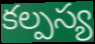
కల్పస్య